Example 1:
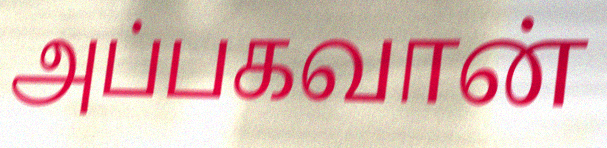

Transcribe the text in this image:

அப்பகவான்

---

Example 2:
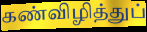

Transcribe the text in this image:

கண்விழித்துப்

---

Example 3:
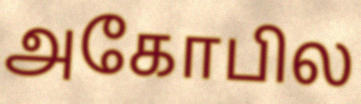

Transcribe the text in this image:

அகோபில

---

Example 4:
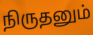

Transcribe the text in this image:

நிருதனும்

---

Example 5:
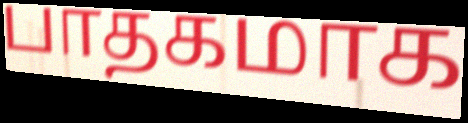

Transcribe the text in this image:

பாதகமாக